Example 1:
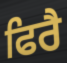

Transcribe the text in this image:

ਫਿਰੈ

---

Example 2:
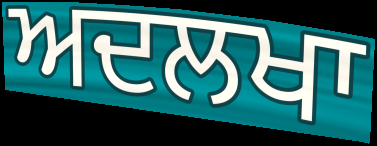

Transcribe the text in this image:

ਅਦਲਖਾ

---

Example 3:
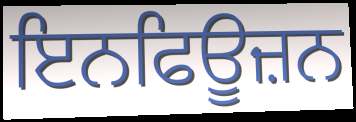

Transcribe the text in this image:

ਇਨਫਿਊਜ਼ਨ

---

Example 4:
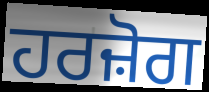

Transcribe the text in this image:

ਹਰਜ਼ੋਗ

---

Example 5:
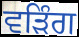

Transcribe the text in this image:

ਵੜਿੰਗ